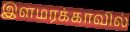
இளமரக்காவில்